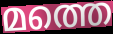
മത്തെ